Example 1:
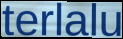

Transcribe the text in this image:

terlalu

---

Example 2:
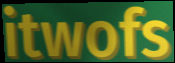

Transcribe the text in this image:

itwofs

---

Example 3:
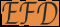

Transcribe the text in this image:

EFD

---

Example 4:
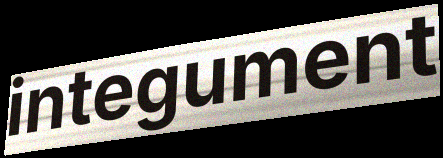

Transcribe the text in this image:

integument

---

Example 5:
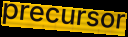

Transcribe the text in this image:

precursor